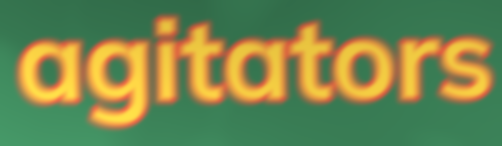
agitators